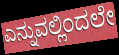
ಎನ್ನುವಲ್ಲಿಂದಲೇ